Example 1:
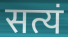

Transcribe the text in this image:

सत्यं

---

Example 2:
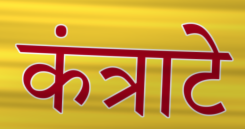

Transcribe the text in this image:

कंत्राटे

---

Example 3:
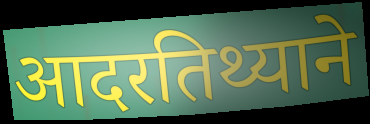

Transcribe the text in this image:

आदरतिथ्याने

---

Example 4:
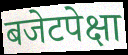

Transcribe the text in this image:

बजेटपेक्षा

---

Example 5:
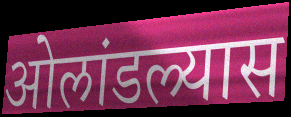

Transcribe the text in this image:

ओलांडल्यास